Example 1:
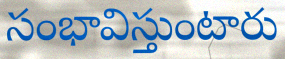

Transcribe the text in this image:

సంభావిస్తుంటారు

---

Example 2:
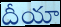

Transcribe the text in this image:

దీయా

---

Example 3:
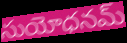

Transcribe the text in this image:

సుయోధనమ్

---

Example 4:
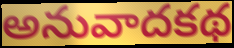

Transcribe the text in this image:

అనువాదకథ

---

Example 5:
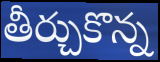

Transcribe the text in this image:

తీర్చుకొన్న